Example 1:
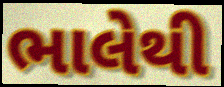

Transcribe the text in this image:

ભાલેથી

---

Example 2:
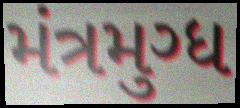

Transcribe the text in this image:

મંત્રમુગ્ધ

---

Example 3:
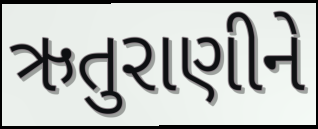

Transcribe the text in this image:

ઋતુરાણીને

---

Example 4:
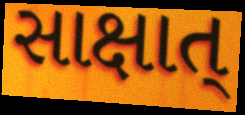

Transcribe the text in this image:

સાક્ષાત્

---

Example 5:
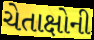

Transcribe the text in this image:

ચેતાક્ષોની